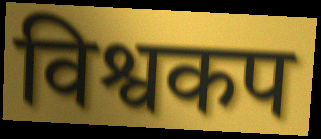
विश्वकप